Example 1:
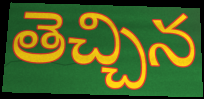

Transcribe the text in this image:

తెచ్చిన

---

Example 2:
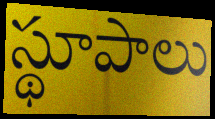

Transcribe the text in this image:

స్థూపాలు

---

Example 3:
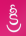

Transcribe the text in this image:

క్రీ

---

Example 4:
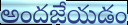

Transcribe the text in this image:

అందజేయడం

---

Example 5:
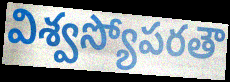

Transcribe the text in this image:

విశ్వస్యోపరతౌ